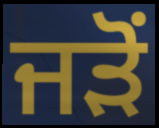
ਜਡ਼ੋਂ